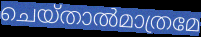
ചെയ്താൽമാത്രമേ